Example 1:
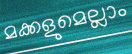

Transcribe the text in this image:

മക്കളുമെല്ലാം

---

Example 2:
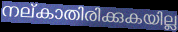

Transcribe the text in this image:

നല്‌കാതിരിക്കുകയില്ല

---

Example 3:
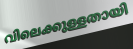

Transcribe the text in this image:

വിലെക്കുള്ളതായി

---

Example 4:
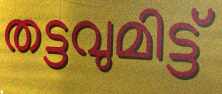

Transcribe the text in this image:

തട്ടവുമിട്ട്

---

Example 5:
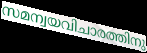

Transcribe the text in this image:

സമന്വയവിചാരത്തിനു